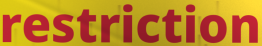
restriction